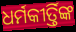
ଧର୍ମକୀର୍ତ୍ତିଙ୍କ